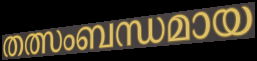
തത്സംബന്ധമായ